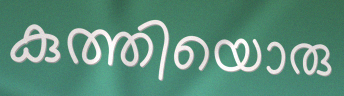
കുത്തിയൊരു